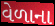
વેળાના